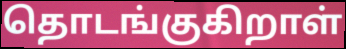
தொடங்குகிறாள்